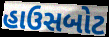
હાઉસબોટ